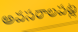
అవసరాలపట్ల